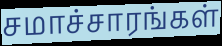
சமாச்சாரங்கள்